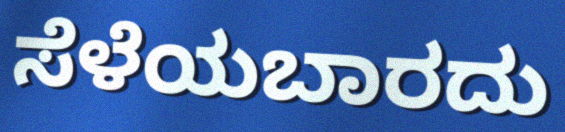
ಸೆಳೆಯಬಾರದು